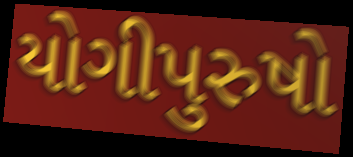
યોગીપુરુષો